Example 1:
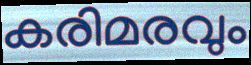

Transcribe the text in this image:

കരിമരവും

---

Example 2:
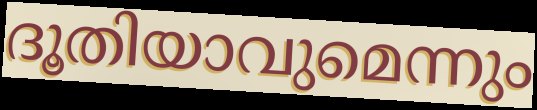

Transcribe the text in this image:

ദൂതിയാവുമെന്നും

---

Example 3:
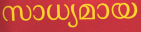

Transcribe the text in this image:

സാധ്യമായ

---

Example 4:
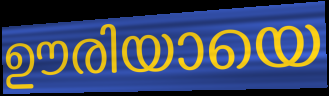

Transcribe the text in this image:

ഊരിയായെ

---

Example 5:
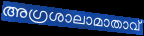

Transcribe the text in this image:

അഗ്രശാലാമാതാവ്